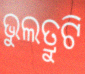
ଭୁଲତ୍ରୁଟି